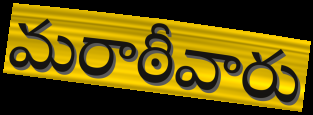
మరాఠీవారు